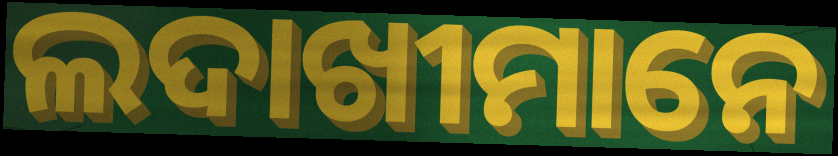
ଲଦାଖୀମାନେ